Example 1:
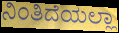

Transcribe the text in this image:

ನಿಂತಿದೆಯಲ್ಲಾ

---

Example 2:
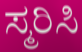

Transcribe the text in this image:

ಸ್ಮರಿಸಿ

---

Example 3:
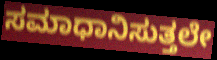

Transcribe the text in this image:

ಸಮಾಧಾನಿಸುತ್ತಲೇ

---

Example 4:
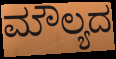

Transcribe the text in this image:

ಮೌಲ್ಯದ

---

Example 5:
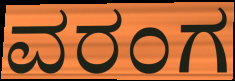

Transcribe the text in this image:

ವರಂಗ